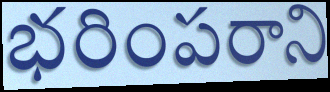
భరింపరాని